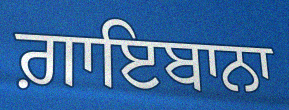
ਗ਼ਾਇਬਾਨਾ